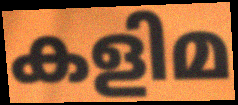
കളിമ